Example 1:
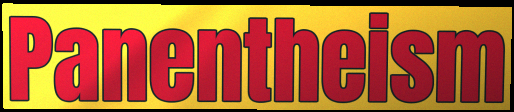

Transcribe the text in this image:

Panentheism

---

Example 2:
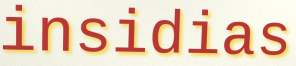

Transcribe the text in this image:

insidias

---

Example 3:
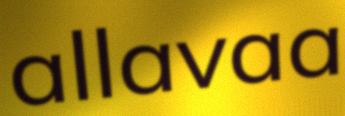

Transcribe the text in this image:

allavaa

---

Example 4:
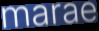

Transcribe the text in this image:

marae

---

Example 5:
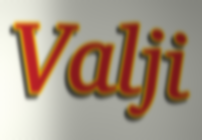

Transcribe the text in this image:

Valji